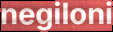
negiloni